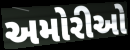
અમોરીઓ